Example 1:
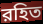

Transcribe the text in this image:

রহিত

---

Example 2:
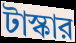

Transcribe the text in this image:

টাস্কার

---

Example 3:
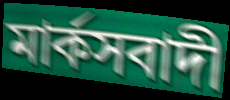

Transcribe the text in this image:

মার্কসবাদী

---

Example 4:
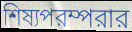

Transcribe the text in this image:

শিষ্যপরম্পরার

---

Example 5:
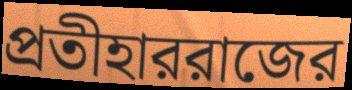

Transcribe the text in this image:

প্রতীহাররাজের